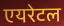
एयरेटल